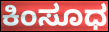
ಕಿಂಸೂಧ